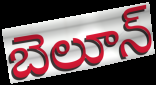
బెలూన్